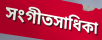
সংগীতসাধিকা